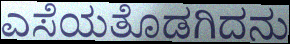
ಎಸೆಯತೊಡಗಿದನು